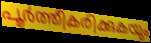
പൂർത്തീകരിക്കുകയും